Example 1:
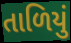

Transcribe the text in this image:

તાળિયું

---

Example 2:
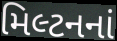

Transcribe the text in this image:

મિલ્ટનનાં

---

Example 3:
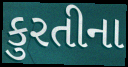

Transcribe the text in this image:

કુરતીના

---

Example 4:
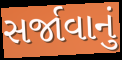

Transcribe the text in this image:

સર્જાવાનું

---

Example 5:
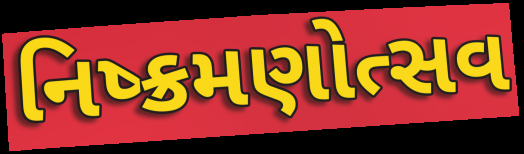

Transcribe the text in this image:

નિષ્ક્રમણોત્સવ